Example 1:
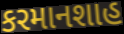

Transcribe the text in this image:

કરમાનશાહ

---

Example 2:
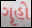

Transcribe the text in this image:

ગૃહો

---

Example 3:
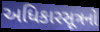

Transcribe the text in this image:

અધિકારસૂત્રનો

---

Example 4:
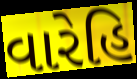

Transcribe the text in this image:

વારેહિ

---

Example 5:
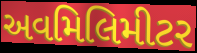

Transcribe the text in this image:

અવમિલિમીટર